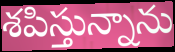
శపిస్తున్నాను